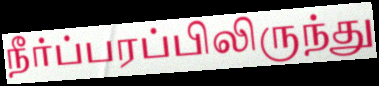
நீர்ப்பரப்பிலிருந்து